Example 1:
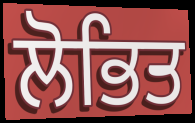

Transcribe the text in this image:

ਲੋਭਿਤ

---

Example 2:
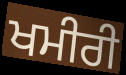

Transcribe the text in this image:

ਖਮੀਰੀ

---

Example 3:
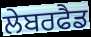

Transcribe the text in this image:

ਲੇਬਰਫੈਡ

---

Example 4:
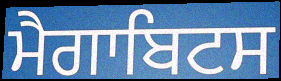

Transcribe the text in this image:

ਮੈਗਾਬਿਟਸ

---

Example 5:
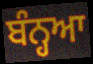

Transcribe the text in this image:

ਬੰਨ੍ਹਆ